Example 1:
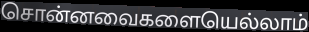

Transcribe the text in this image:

சொன்னவைகளையெல்லாம்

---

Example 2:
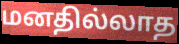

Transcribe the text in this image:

மனதில்லாத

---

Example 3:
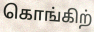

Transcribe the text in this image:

கொங்கிற்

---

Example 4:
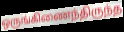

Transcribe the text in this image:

ஒருங்கிணைந்திருந்த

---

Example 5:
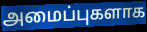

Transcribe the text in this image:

அமைப்புகளாக